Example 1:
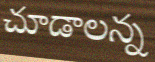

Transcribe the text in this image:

చూడాలన్న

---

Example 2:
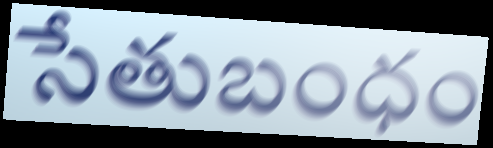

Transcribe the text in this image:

సేతుబంధం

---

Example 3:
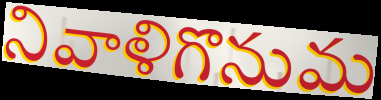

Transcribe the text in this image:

నివాళిగొనుమ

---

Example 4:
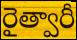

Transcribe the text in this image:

రైత్వారీ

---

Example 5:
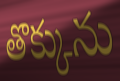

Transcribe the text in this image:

తొక్కును